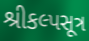
શ્રીકલ્પસૂત્ર